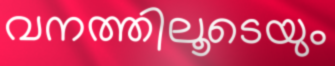
വനത്തിലൂടെയും